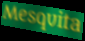
Mesquita